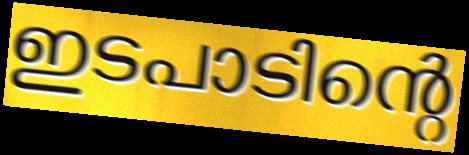
ഇടപാടിന്റെ